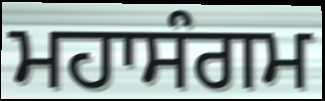
ਮਹਾਸੰਗਮ